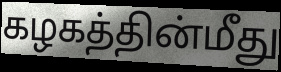
கழகத்தின்மீது